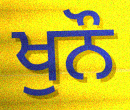
ਖੁਨੌ